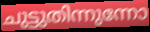
ചുട്ടുതിന്നുന്നോ